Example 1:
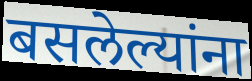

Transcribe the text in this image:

बसलेल्यांना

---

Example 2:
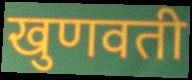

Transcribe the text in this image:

खुणवती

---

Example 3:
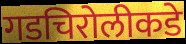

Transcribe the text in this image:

गडचिरोलीकडे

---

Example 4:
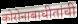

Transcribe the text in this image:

कोरोनाबाधीतांची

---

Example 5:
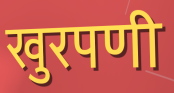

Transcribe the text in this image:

खुरपणी